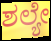
ಶಲ್ಯೇ